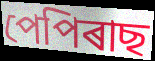
পেপিৰাছ